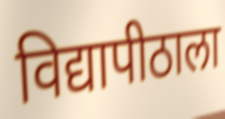
विद्यापीठाला